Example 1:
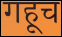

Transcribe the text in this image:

गहूच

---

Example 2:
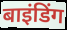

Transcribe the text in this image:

बाइंडिंग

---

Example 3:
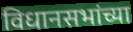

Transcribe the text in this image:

विधानसभांच्या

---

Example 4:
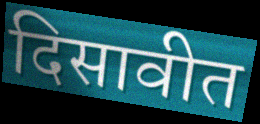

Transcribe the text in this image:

दिसावीत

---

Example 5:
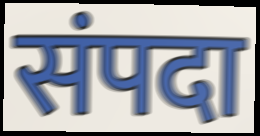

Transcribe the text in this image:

संपदा